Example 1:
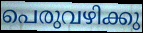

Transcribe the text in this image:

പെരുവഴിക്കു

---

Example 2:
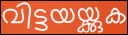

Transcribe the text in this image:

വിട്ടയയ്ക്കുക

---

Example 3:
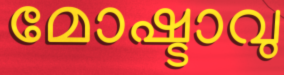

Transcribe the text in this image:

മോഷ്ടാവു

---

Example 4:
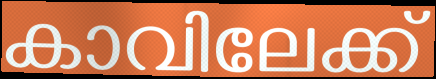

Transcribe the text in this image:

കാവിലേക്ക്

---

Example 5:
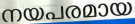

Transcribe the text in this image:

നയപരമായ